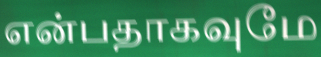
என்பதாகவுமே